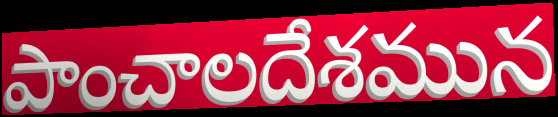
పాంచాలదేశమున